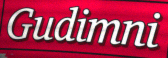
Gudimni